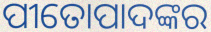
ପୀତୋପାଦଙ୍କର